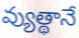
వ్యుత్థానే